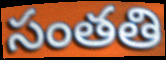
సంతతి